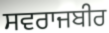
ਸਵਰਾਜਬੀਰ